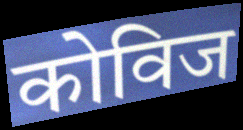
कोविज